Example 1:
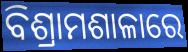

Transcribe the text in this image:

ବିଶ୍ରାମଶାଳାରେ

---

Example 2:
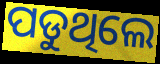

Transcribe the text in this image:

ପଡୁଥିଲେ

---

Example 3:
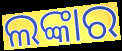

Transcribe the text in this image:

ଲଙ୍କାର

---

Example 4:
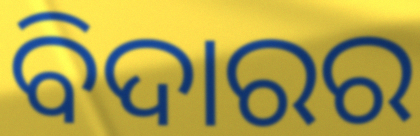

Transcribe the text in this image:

ବିଦାରର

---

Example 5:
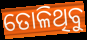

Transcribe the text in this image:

ତୋଳିଥିବୁ